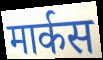
मार्कस